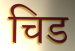
चिड